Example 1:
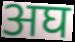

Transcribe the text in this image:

अघ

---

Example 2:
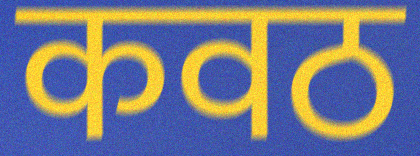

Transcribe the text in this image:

कवठ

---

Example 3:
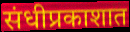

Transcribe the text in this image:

संधीप्रकाशात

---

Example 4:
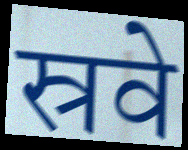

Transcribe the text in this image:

स्रवे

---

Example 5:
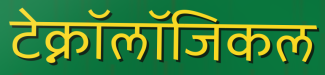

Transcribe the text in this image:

टेक्नॉलॉजिकल